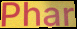
Phar